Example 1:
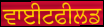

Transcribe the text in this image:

ਵਾਈਟਫੀਲਡ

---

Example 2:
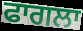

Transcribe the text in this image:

ਫਾਗਲਾ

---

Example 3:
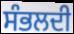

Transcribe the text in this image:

ਸੰਭਲਦੀ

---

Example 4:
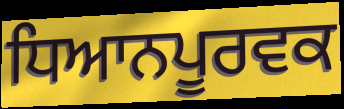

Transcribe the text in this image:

ਧਿਆਨਪੂਰਵਕ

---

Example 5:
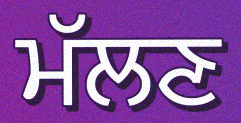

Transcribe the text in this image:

ਮੱਲਣ